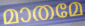
മാതമേ